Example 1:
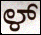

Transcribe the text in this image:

ಳ್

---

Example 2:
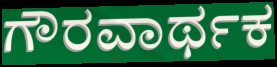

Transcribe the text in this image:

ಗೌರವಾರ್ಥಕ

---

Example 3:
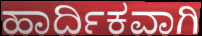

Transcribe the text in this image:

ಹಾರ್ದಿಕವಾಗಿ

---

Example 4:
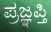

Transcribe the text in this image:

ಪ್ರಜ್ಞಪ್ತಿ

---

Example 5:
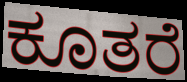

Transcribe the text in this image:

ಕೂತರೆ